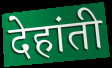
देहांती